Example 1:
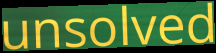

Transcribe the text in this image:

unsolved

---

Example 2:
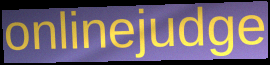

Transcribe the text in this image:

onlinejudge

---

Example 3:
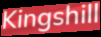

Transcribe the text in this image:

Kingshill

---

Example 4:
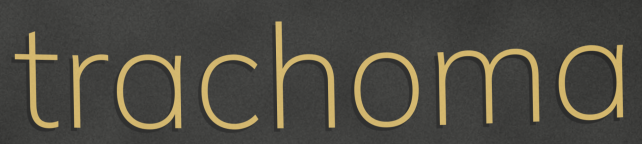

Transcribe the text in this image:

trachoma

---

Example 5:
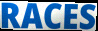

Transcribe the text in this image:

RACES